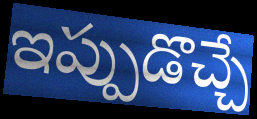
ఇప్పుడొచ్చే